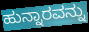
ಹುನ್ನಾರವನ್ನು